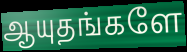
ஆயுதங்களே